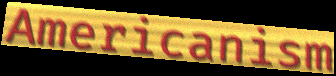
Americanism